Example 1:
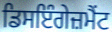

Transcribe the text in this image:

ਡਿਸਇੰਗੇਜ਼ਮੈਂਟ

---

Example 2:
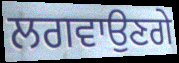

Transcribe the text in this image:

ਲਗਵਾਉਣਗੇ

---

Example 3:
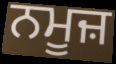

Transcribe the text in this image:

ਨਮੂਜ਼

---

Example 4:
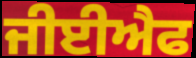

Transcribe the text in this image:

ਜੀਈਐਫ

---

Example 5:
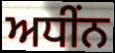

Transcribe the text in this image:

ਅਧੀਂਨ